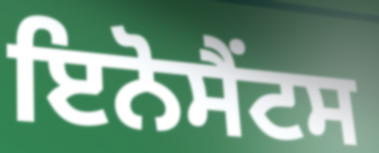
ਇਨੋਸੈਂਟਸ